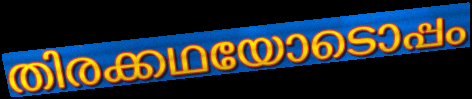
തിരക്കഥയോടൊപ്പം